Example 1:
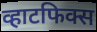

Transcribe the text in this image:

व्हाटफिक्स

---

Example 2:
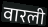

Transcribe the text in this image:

वारली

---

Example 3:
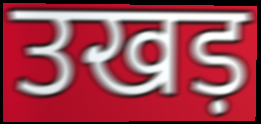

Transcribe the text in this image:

उखड़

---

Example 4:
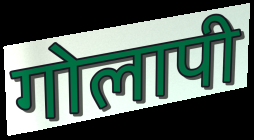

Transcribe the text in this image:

गोलापी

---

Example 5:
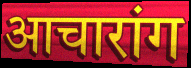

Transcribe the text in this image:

आचारांग